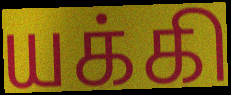
யக்கி